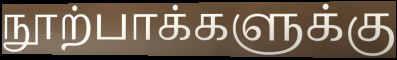
நூற்பாக்களுக்கு